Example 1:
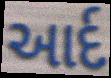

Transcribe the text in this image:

આર્દ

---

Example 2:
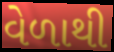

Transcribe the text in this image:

વેળાથી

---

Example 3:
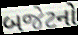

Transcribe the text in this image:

બજેટનો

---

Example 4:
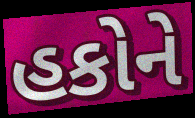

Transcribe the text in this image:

હકોને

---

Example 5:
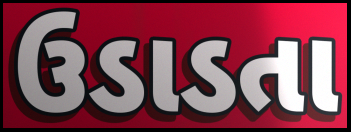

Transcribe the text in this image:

ઉડાડતા